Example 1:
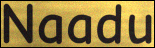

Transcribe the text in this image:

Naadu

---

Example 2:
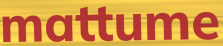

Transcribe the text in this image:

mattume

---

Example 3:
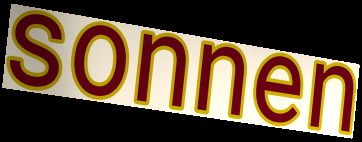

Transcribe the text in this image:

sonnen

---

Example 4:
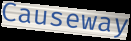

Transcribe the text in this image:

Causeway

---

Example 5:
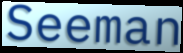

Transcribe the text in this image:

Seeman